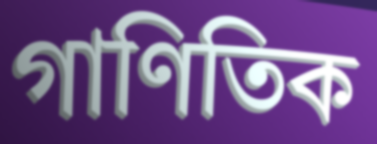
গাণিতিক